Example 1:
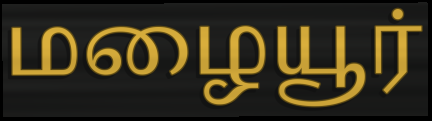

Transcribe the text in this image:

மழையூர்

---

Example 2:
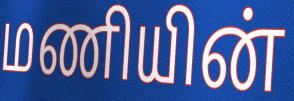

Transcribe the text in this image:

மணியின்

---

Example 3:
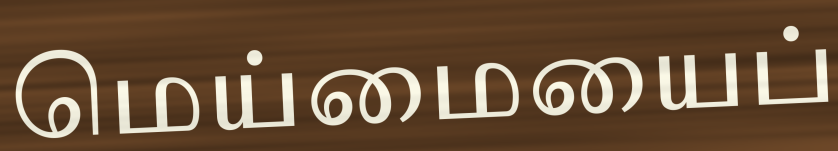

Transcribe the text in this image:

மெய்மையைப்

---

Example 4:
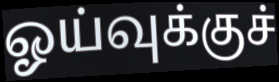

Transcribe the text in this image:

ஓய்வுக்குச்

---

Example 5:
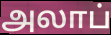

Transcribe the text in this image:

அலாப்